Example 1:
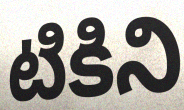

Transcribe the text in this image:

టికిని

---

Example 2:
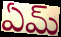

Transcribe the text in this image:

ఏమ్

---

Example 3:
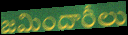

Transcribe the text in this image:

జమిందారీలు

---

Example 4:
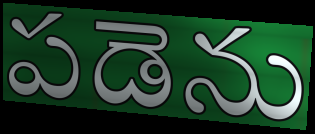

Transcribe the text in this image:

పడెను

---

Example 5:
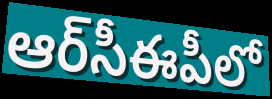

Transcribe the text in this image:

ఆర్‌సీఈపీలో